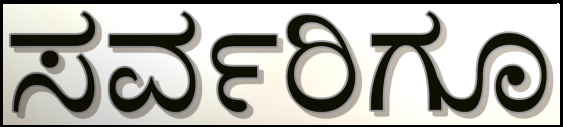
ಸರ್ವರಿಗೂ